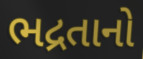
ભદ્રતાનો